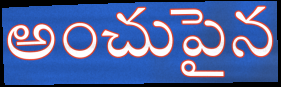
అంచుపైన